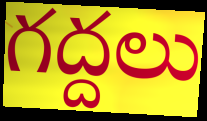
గద్దలు